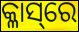
କ୍ଳାସ୍‌ରେ